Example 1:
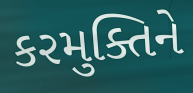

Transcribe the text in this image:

કરમુક્તિને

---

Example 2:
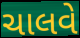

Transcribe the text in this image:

ચાલવે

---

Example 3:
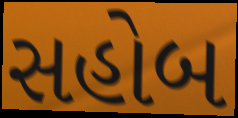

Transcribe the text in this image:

સહોબ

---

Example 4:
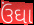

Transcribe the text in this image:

ઉંઘા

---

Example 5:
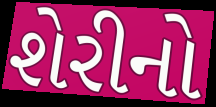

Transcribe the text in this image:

શેરીનો